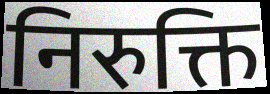
निरुक्ति